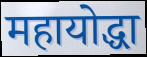
महायोद्धा